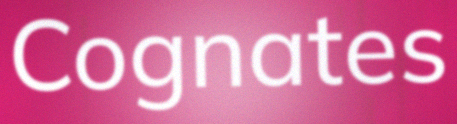
Cognates